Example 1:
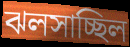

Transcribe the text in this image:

ঝলসাচ্ছিল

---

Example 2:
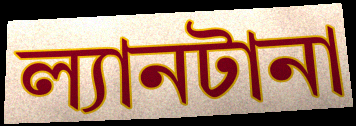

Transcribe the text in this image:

ল্যানটানা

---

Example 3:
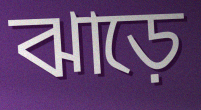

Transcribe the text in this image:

ঝাড়ে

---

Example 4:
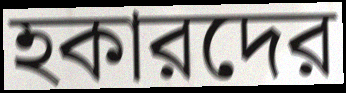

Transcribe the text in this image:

হকারদের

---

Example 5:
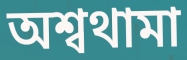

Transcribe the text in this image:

অশ্বথামা